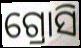
ଗ୍ରୋସି